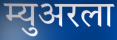
म्युअरला